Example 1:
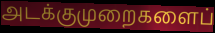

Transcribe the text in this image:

அடக்குமுறைகளைப்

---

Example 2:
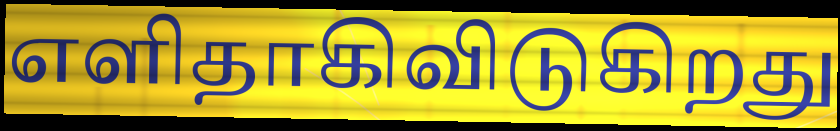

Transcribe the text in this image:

எளிதாகிவிடுகிறது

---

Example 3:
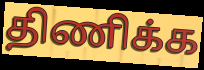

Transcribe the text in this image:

திணிக்க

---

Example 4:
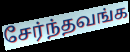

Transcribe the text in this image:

சேர்ந்தவங்க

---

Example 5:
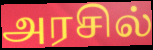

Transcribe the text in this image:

அரசில்